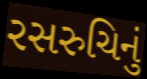
રસરુચિનું